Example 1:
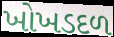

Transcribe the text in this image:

ખોખડદળ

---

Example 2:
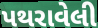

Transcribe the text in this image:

પથરાવેલી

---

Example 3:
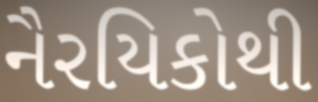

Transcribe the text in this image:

નૈરયિકોથી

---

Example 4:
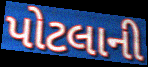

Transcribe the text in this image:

પોટલાની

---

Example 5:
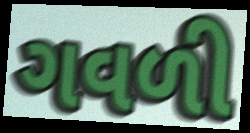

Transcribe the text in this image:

ગવળી